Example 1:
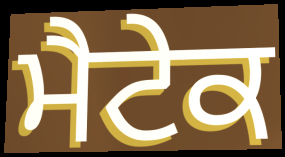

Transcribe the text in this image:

ਮੈਟੇਕ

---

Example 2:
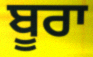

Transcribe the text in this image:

ਬੂਰਾ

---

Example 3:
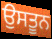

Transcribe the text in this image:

ਉਸਤੂਨ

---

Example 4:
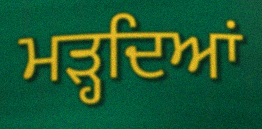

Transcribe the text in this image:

ਮੜ੍ਹਦਿਆਂ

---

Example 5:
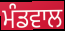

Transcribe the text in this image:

ਮੰਡਵਾਲ